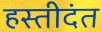
हस्तीदंत